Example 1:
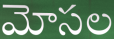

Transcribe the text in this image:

మోసల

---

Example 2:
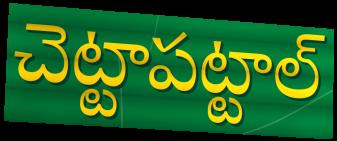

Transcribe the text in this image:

చెట్టాపట్టాల్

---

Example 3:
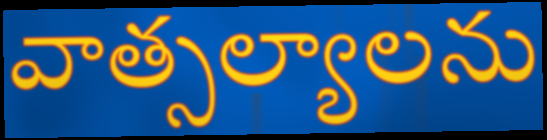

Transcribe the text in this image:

వాత్సల్యాలను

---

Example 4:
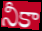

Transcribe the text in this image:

నీకా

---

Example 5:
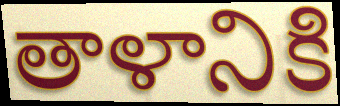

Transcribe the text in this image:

తాళానికి